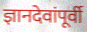
ज्ञानदेवांपूर्वी